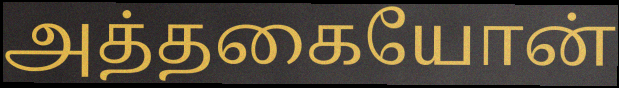
அத்தகையோன்